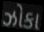
ઝોકા